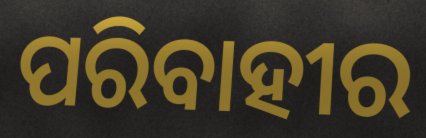
ପରିବାହୀର